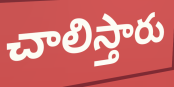
చాలిస్తారు